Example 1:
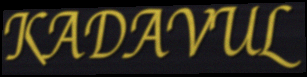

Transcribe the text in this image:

KADAVUL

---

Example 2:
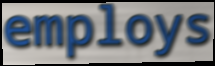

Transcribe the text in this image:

employs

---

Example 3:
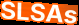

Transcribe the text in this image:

SLSAs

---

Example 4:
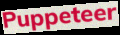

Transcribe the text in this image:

Puppeteer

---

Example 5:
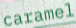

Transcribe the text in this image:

caramel